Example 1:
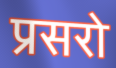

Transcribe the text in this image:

प्रसरो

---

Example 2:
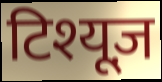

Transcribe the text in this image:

टिश्यूज़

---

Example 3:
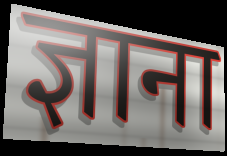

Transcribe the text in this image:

ज्ञाना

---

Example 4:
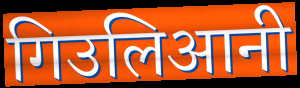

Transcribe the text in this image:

गिउलिआनी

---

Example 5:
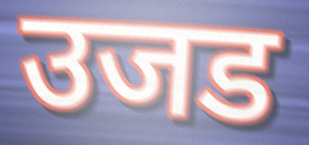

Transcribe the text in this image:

उजड